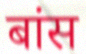
बांस